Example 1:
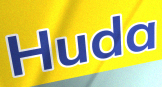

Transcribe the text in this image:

Huda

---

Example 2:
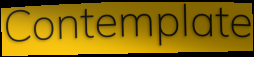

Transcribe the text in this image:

Contemplate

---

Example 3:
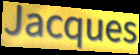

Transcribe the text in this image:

Jacques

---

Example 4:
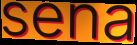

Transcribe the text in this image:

sena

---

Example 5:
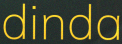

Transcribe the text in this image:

dinda